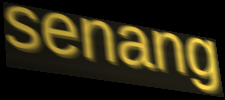
senang